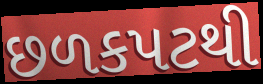
છળકપટથી